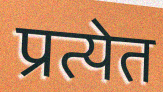
प्रत्येत